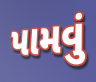
પામવું